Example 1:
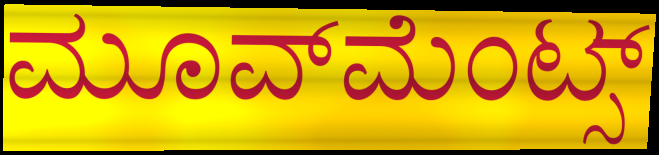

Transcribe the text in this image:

ಮೂವ್‌ಮೆಂಟ್ಸ್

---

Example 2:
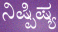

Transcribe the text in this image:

ನಿಷ್ಪಿಷ್ಯ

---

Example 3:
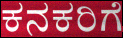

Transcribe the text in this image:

ಕನಕರಿಗೆ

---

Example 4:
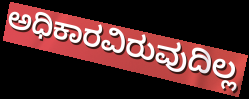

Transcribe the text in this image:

ಅಧಿಕಾರವಿರುವುದಿಲ್ಲ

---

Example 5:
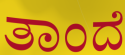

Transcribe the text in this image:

ತಾಂದೆ